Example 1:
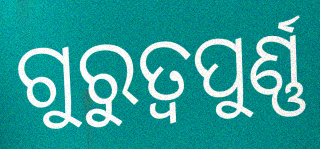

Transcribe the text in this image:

ଗୁରୁତ୍ୱପୁର୍ଣ୍ଣ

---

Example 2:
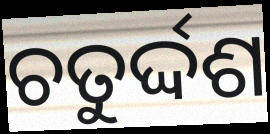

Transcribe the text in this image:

ଚତୁର୍ଦ୍ଦଶ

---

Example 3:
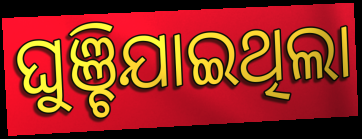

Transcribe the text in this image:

ଘୁଞ୍ଚିଯାଇଥିଲା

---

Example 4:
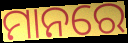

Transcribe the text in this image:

ମାନରେ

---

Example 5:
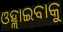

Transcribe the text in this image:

ଓହ୍ଲାଇବାକୁ